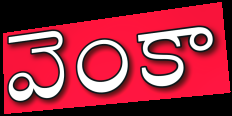
వెంకా